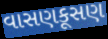
વાસણકૂસણ